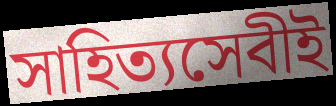
সাহিত্যসেবীই